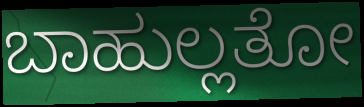
ಬಾಹುಲ್ಲತೋ